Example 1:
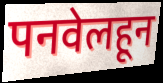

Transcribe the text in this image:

पनवेलहून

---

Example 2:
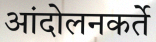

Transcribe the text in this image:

आंदोलनकर्ते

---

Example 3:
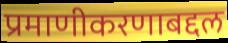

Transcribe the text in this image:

प्रमाणीकरणाबद्दल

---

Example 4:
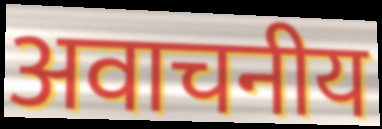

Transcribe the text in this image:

अवाचनीय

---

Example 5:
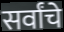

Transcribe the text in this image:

सर्वांचे